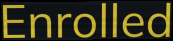
Enrolled